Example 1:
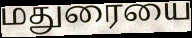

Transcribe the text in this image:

மதுரையை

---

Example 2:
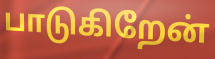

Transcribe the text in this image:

பாடுகிறேன்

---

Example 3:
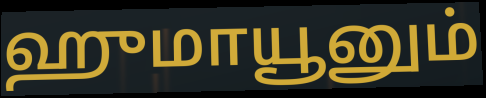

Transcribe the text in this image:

ஹுமாயூனும்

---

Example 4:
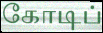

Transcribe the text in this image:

கோடிப்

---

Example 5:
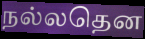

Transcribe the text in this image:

நல்லதென